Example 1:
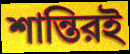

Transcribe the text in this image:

শান্তিরই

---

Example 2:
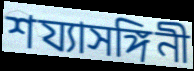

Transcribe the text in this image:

শয্যাসঙ্গিনী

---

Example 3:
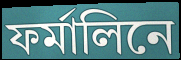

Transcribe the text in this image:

ফর্মালিনে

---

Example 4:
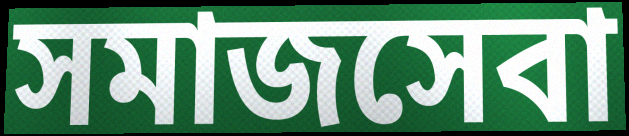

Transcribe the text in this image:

সমাজসেবা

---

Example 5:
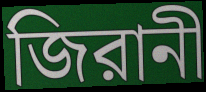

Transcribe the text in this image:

জিরানী